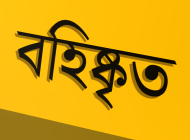
বহিষ্কৃত